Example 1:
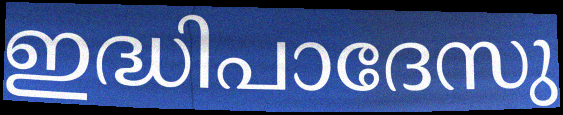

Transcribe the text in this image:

ഇദ്ധിപാദേസു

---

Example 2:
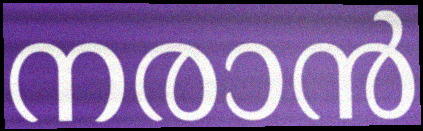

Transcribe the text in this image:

നരാൻ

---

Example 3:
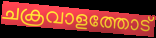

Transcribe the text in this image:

ചക്രവാളത്തോട്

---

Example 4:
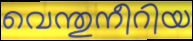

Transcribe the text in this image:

വെന്തുനീറിയ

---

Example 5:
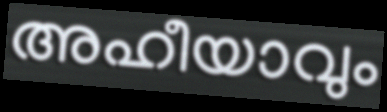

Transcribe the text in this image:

അഹീയാവും